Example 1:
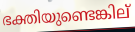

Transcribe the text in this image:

ഭക്തിയുണ്ടെങ്കില്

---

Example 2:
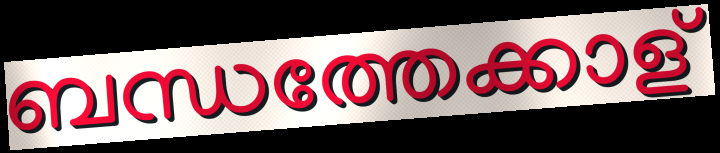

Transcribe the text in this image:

ബന്ധത്തേക്കാള്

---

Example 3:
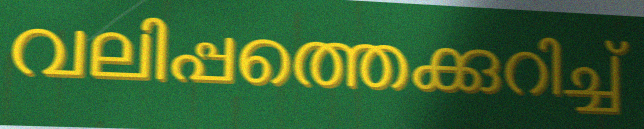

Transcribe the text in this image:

വലിപ്പത്തെക്കുറിച്ച്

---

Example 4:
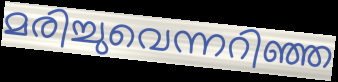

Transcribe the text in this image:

മരിച്ചുവെന്നറിഞ്ഞ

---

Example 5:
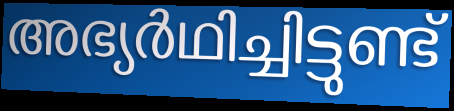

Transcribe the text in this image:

അഭ്യർഥിച്ചിട്ടുണ്ട്